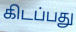
கிடப்பது